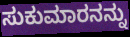
ಸುಕುಮಾರನನ್ನು